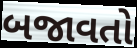
બજાવતો